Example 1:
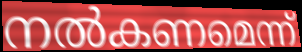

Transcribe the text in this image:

നൽകണമെന്ന്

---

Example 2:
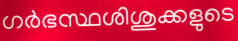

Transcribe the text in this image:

ഗർഭസ്ഥശിശുക്കളുടെ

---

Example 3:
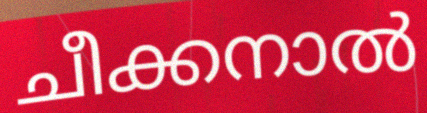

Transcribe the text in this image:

ചീക്കനാൽ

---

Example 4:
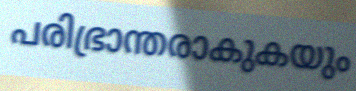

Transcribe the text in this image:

പരിഭ്രാന്തരാകുകയും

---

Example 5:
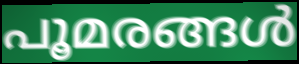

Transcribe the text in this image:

പൂമരങ്ങൾ